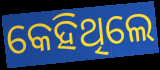
କେହିଥିଲେ